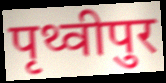
पृथ्वीपुर